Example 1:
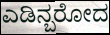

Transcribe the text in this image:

ಎಡಿನ್ಬರೋದ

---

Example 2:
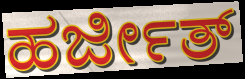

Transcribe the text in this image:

ಹರ್ಜೀತ್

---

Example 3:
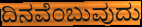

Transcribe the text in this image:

ದಿನವೆಂಬುವುದು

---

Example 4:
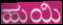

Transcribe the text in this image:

ಹುಯಿ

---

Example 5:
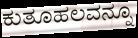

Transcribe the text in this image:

ಕುತೂಹಲವನ್ನೂ